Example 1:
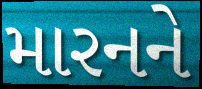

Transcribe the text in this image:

મારનને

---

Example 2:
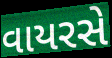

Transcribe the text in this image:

વાયરસે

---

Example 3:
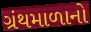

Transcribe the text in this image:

ગ્રંથમાળાનો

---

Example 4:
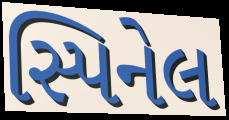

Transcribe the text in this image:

સ્પિનેલ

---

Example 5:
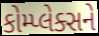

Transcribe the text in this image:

કોમ્પ્લેક્સને